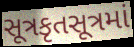
સૂત્રકૃતસૂત્રમાં